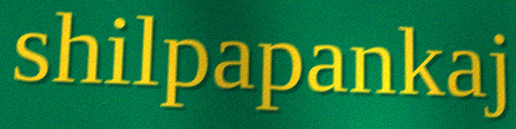
shilpapankaj